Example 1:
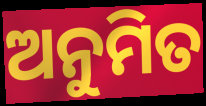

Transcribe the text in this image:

ଅନୁମିତ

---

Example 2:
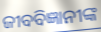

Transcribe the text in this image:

ଜୀବବିଜ୍ଞାନୀଙ୍କ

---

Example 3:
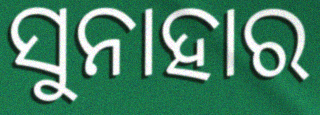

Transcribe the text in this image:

ସୁନାହାର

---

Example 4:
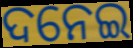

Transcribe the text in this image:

ଦନେଇ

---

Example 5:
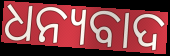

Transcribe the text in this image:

ଧନ୍ୟବାଦ